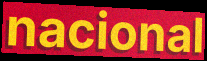
nacional